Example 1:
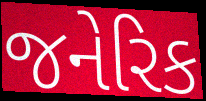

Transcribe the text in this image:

જનેરિક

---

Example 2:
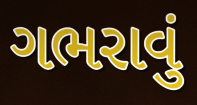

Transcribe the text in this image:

ગભરાવું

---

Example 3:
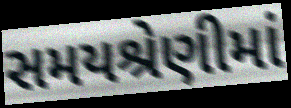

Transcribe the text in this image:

સમયશ્રેણીમાં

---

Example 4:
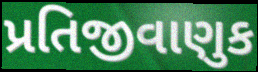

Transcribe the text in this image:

પ્રતિજીવાણુક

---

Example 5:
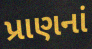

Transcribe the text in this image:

પ્રાણનાં